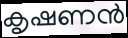
കൃഷണൻ